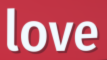
love